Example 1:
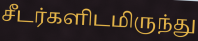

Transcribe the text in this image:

சீடர்களிடமிருந்து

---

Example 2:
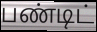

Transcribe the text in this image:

பண்டிட்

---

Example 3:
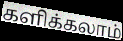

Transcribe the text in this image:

களிக்கலாம்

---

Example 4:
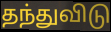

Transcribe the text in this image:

தந்துவிடு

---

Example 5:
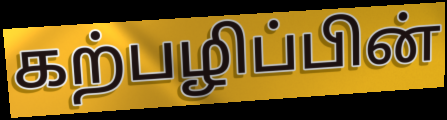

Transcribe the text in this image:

கற்பழிப்பின்